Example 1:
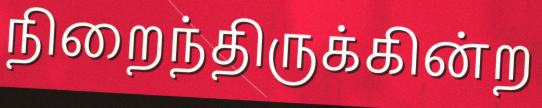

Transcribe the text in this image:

நிறைந்திருக்கின்ற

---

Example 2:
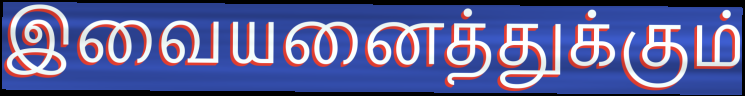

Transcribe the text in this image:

இவையனைத்துக்கும்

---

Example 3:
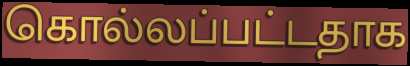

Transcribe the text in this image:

கொல்லப்பட்டதாக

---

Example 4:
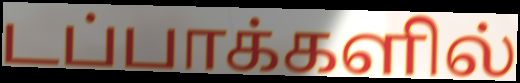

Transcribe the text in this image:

டப்பாக்களில்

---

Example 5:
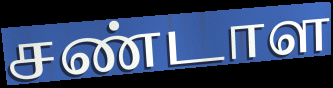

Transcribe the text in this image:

சண்டாள